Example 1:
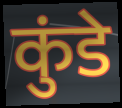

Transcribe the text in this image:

कुंडे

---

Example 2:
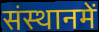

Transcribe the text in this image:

संस्थानमें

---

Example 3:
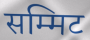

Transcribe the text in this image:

सम्मिट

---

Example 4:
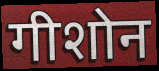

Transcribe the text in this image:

गीशोन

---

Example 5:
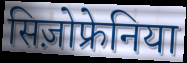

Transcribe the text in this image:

सिज़ोफ्रेनिया